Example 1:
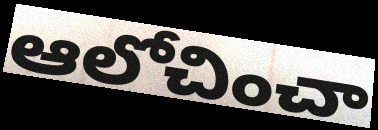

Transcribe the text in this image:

ఆలోచించా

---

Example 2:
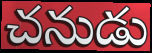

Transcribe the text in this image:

చనుడు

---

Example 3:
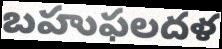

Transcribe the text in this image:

బహుఫలదళ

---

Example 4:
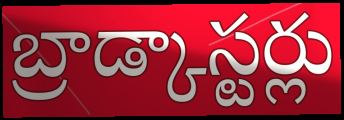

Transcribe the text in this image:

బ్రాడ్కాస్టర్లు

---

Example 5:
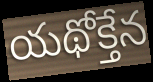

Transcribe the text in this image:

యథోక్తేన